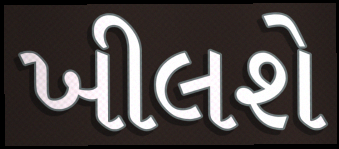
ખીલશે